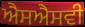
ਐਸਐਸਵੀ